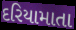
દરિયામાતા